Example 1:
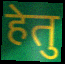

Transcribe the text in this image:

हेतु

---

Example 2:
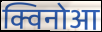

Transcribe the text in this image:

क्विनोआ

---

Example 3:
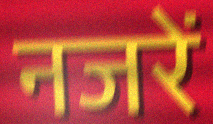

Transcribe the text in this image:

नजरें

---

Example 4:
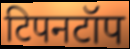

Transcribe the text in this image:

टिपनटॉप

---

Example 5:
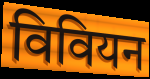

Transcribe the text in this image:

विवियन